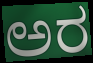
ಅರ